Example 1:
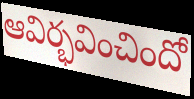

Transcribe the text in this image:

ఆవిర్భవించిందో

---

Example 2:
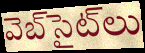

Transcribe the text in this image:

వెబ్‌సైట్‌లు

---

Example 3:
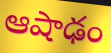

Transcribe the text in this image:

ఆషాఢం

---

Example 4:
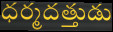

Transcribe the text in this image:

ధర్మదత్తుడు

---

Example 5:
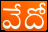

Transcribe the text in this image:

వేదో